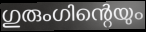
ഗുരുംഗിന്റെയും